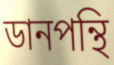
ডানপন্থি